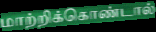
மாற்றிக்கொண்டால்